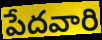
పేదవారి